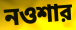
নওশার